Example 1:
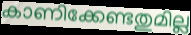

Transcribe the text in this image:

കാണിക്കേണ്ടതുമില്ല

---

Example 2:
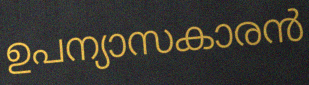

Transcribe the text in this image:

ഉപന്യാസകാരൻ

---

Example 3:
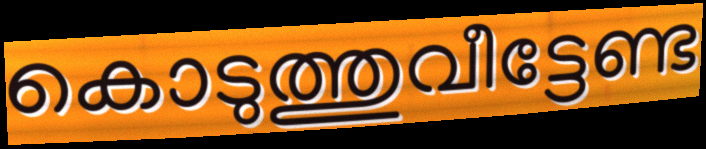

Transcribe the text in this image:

കൊടുത്തുവീട്ടേണ്ട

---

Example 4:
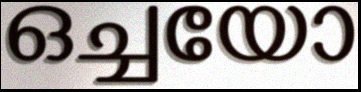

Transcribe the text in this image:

ഒച്ചയോ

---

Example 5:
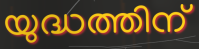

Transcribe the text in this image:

യുദ്ധത്തിന്